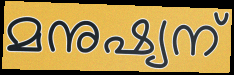
മനുഷ്യന്